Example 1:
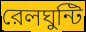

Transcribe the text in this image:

রেলঘুন্টি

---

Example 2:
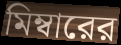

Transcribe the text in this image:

মিম্বারের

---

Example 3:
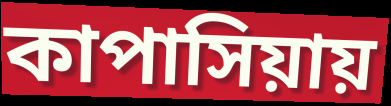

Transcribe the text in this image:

কাপাসিয়ায়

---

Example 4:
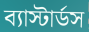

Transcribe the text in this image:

ব্যাস্টার্ডস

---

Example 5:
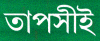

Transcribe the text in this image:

তাপসীই